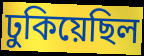
ঢুকিয়েছিল